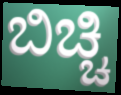
ಬಿಚ್ಚಿ